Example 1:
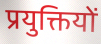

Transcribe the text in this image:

प्रयुक्तियों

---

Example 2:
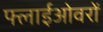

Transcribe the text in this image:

फ्लाईओवरों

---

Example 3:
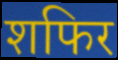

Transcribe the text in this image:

शफिर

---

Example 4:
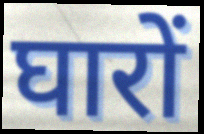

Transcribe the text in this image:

घारों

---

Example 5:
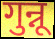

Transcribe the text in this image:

गुन्नू